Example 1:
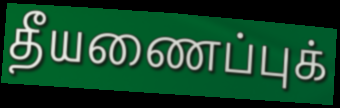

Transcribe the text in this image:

தீயணைப்புக்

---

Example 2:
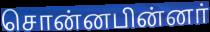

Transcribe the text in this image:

சொன்னபின்னர்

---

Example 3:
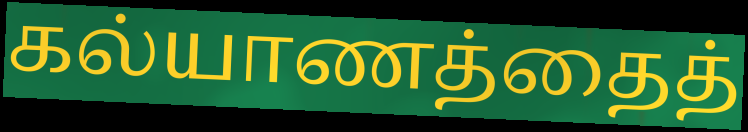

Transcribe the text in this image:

கல்யாணத்தைத்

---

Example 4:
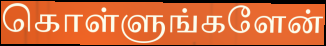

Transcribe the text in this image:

கொள்ளுங்களேன்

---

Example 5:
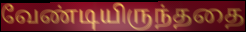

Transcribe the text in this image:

வேண்டியிருந்ததை